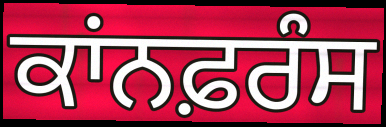
ਕਾਂਨਫ਼ਰੰਸ